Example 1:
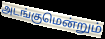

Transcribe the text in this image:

அடங்குமென்றும்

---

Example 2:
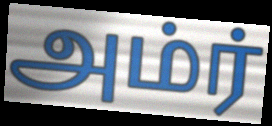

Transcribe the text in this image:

அம்ர்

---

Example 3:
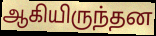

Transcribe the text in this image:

ஆகியிருந்தன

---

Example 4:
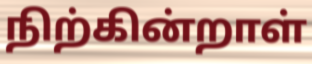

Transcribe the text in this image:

நிற்கின்றாள்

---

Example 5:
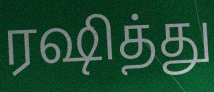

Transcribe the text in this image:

ரஷித்து